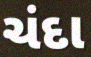
ચંદા